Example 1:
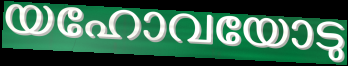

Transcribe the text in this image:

യഹോവയോടു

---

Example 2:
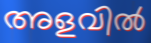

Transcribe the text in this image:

അളവിൽ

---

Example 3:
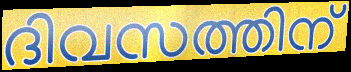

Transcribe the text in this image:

ദിവസത്തിന്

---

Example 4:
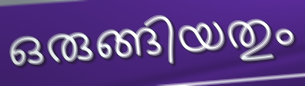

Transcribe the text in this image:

ഒരുങ്ങിയതും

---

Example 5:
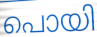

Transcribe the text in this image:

പൊയി